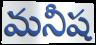
మనీష